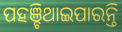
ପହଞ୍ଚିଥାଇପାରନ୍ତି